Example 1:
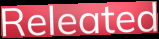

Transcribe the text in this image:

Releated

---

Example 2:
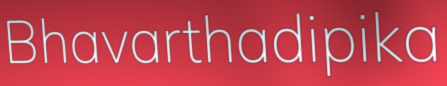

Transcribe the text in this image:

Bhavarthadipika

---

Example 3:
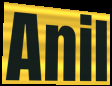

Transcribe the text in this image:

Anil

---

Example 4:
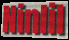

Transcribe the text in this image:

Ninlil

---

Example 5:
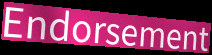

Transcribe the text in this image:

Endorsement